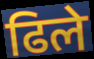
ढिले